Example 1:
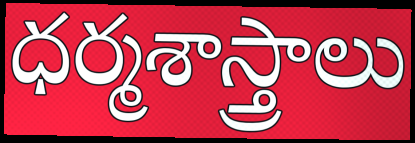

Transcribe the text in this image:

ధర్మశాస్త్రాలు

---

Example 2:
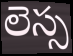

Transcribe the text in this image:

లెస్స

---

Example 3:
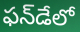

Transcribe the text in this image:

ఫన్‌డేలో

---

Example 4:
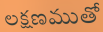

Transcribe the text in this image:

లక్షణముతో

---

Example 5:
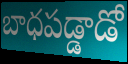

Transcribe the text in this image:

బాధపడ్డాడో